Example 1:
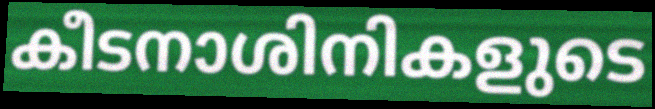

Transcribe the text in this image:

കീടനാശിനികളുടെ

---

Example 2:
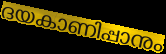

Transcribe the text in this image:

ദയകാണിപ്പാനും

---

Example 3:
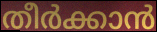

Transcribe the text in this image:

തീർക്കാൻ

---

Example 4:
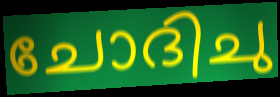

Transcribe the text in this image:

ചോദിചു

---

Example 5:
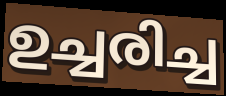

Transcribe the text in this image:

ഉച്ചരിച്ച